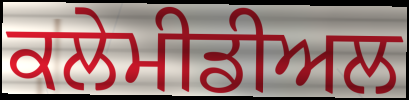
ਕਲੇਮੀਡੀਅਲ